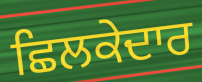
ਛਿਲਕੇਦਾਰ